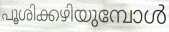
പൂശിക്കഴിയുമ്പോൾ